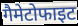
गैमेटोफाइट